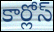
కార్లోస్